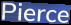
Pierce